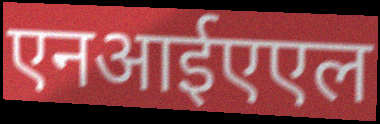
एनआईएएल